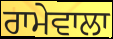
ਰਾਮੇਵਾਲਾ